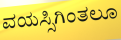
ವಯಸ್ಸಿಗಿಂತಲೂ